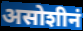
असोशीनं